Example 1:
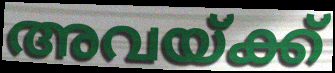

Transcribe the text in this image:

അവയ്ക്ക്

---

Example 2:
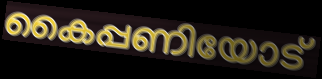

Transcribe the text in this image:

കൈപ്പണിയോട്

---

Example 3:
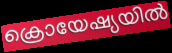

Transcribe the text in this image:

ക്രൊയേഷ്യയിൽ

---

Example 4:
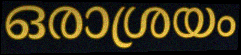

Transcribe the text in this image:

ഒരാശ്രയം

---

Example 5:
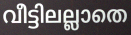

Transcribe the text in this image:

വീട്ടിലല്ലാതെ